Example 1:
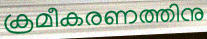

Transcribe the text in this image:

ക്രമീകരണത്തിനു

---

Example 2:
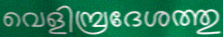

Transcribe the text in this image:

വെളിമ്പ്രദേശത്തു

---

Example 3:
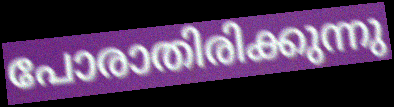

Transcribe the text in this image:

പോരാതിരിക്കുന്നു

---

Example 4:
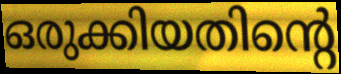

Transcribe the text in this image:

ഒരുക്കിയതിന്റെ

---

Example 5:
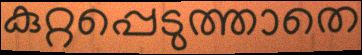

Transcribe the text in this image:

കുറ്റപ്പെടുത്താതെ